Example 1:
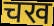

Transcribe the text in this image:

चख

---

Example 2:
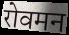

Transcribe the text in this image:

रोवमन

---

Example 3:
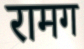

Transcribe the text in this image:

रामग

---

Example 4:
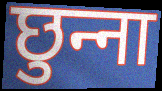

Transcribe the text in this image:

छुन्ना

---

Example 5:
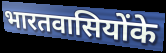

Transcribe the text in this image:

भारतवासियोंके